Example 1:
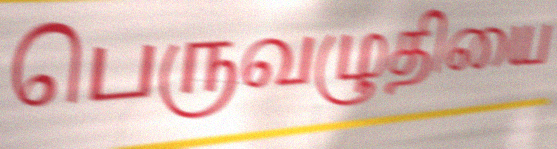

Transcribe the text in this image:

பெருவழுதியை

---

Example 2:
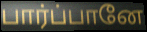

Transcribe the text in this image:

பார்ப்பானே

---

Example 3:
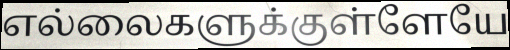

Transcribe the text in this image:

எல்லைகளுக்குள்ளேயே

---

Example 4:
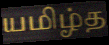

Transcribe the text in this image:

யமிழ்த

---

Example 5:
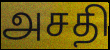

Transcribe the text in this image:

அசதி